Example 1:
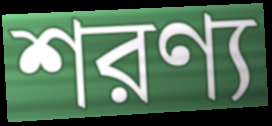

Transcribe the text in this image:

শরণ্য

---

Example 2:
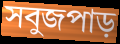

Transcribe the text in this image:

সবুজপাড়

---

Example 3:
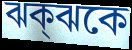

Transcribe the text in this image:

ঝক্ঝকে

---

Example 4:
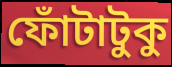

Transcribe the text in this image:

ফোঁটাটুকু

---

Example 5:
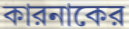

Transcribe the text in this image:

কারনাকের